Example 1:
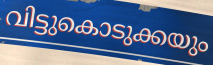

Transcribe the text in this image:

വിട്ടുകൊടുക്കയും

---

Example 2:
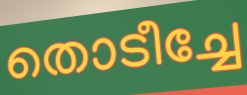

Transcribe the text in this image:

തൊടീച്ചേ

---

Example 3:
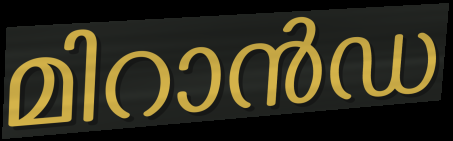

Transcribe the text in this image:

മിറാൻഡ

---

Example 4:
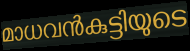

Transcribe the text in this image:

മാധവൻകുട്ടിയുടെ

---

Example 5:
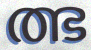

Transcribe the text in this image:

ത്ഭ